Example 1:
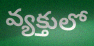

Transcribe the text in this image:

వ్యక్తులో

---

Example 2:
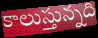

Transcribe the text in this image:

కాలుస్తున్నది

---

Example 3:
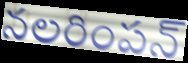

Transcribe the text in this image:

నలరింపన్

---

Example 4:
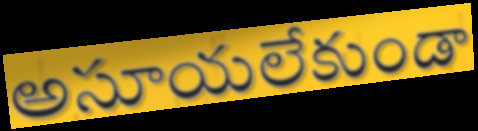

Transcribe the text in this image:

అసూయలేకుండా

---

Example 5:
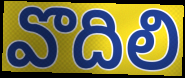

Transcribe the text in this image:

వొదిలి